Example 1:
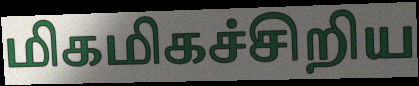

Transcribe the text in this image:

மிகமிகச்சிறிய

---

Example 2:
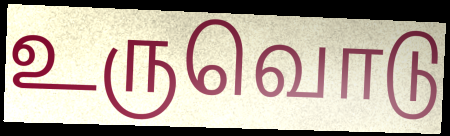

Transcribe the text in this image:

உருவொடு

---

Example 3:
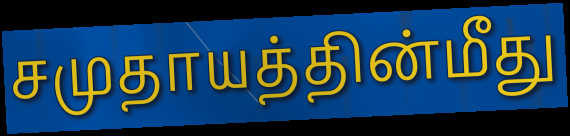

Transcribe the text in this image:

சமுதாயத்தின்மீது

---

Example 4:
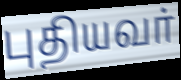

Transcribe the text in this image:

புதியவர்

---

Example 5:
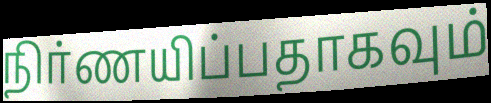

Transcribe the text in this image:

நிர்ணயிப்பதாகவும்